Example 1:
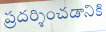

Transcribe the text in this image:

ప్రదర్శించడానికి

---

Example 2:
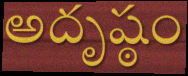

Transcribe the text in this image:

అదృష్ఠం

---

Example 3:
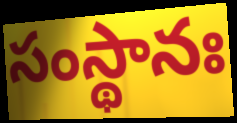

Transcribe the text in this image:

సంస్థానః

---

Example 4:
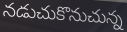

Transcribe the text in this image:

నడుచుకొనుచున్న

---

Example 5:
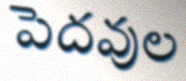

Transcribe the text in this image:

పెదవుల